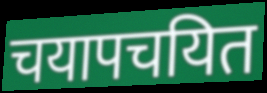
चयापचयित